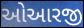
ઓઆરજી